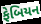
ફેબિયન